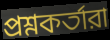
প্রশ্নকর্তারা